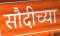
सौदीच्या